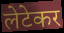
लेटेकर